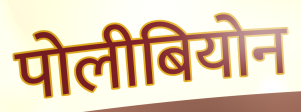
पोलीबियोन